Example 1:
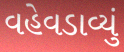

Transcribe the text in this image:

વહેવડાવ્યું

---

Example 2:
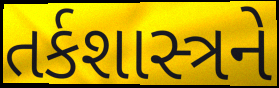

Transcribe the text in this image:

તર્કશાસ્ત્રને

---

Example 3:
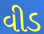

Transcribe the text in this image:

વીડ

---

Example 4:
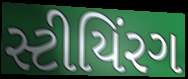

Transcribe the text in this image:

સ્ટીયિંરગ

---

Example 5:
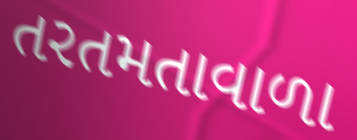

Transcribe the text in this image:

તરતમતાવાળા